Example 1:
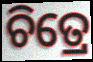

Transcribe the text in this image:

ଚିତ୍ରେ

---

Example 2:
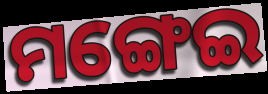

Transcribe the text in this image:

ମଙ୍ଗେଇ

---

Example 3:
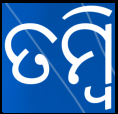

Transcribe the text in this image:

ତମ୍ବି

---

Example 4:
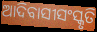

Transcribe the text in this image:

ଆଦିବାସୀସଂସ୍କୃତି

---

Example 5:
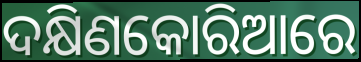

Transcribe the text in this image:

ଦକ୍ଷିଣକୋରିଆରେ